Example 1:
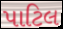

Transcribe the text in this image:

પાટિલ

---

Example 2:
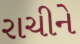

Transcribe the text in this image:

રાચીને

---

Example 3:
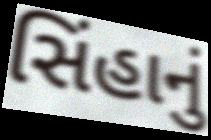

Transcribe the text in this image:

સિંહાનું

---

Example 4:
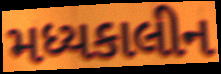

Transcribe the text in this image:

મધ્યકાલીન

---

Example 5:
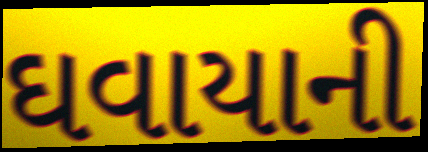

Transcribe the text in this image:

ઘવાયાની